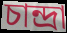
চান্দ্রা